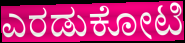
ಎರಡುಕೋಟಿ